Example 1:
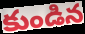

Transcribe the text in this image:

కుండిన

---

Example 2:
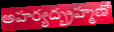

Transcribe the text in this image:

అహర్యద్బ్రహ్మణో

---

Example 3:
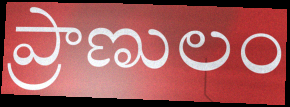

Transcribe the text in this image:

ప్రాణులం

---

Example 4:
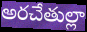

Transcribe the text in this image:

అరచేతుల్లా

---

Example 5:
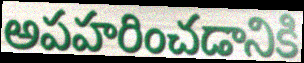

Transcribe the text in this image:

అపహరించడానికి